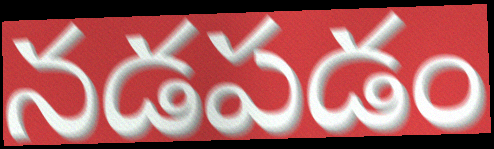
నడపడం